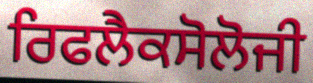
ਰਿਫਲੈਕਸੋਲੋਜੀ